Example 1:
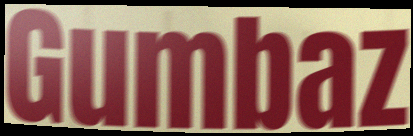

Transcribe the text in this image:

Gumbaz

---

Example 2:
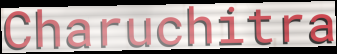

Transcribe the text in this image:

Charuchitra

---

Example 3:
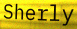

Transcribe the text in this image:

Sherly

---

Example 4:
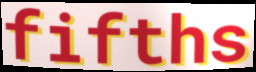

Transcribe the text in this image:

fifths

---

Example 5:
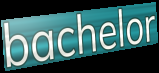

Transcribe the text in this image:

bachelor